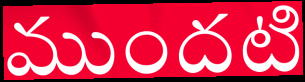
ముందటి